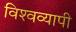
विश्‍वव्यापी